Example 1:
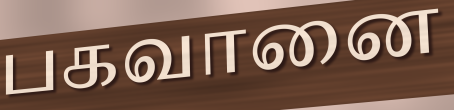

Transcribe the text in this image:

பகவானை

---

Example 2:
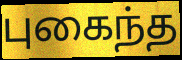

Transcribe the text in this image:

புகைந்த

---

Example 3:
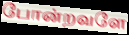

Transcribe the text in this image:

போன்றவளே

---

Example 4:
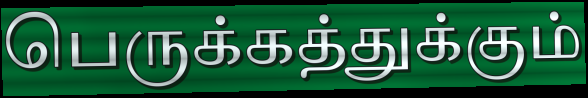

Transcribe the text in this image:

பெருக்கத்துக்கும்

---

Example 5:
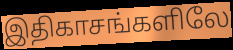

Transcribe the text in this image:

இதிகாசங்களிலே